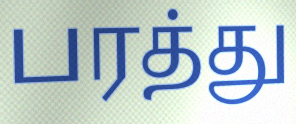
பரத்து